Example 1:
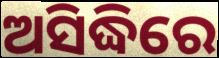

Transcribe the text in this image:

ଅସିଦ୍ଧିରେ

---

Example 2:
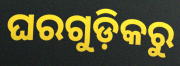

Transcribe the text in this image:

ଘରଗୁଡ଼ିକରୁ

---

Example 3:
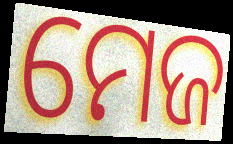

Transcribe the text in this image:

ମେଜ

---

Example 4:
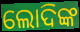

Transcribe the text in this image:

ଲୋଦିଙ୍କ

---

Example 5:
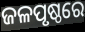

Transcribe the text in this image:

ଜଳପୃଷ୍ଠରେ